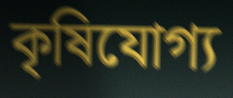
কৃষিযোগ্য